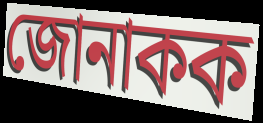
জোনাকক